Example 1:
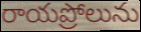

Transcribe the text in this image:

రాయప్రోలును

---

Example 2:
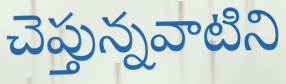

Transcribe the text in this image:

చెప్తున్నవాటిని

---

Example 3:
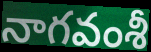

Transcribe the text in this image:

నాగవంశీ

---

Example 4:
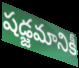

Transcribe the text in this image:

షడ్జమానికీ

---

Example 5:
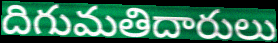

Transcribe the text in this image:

దిగుమతిదారులు